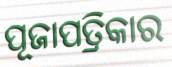
ପୂଜାପତ୍ରିକାର